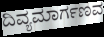
ದಿವ್ಯಮಾರ್ಗಣವ